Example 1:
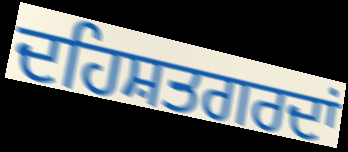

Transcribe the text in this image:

ਦਹਿਸ਼ਤਗਰਦਾਂ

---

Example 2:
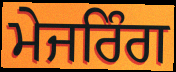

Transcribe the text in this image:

ਮੇਜਰਿੰਗ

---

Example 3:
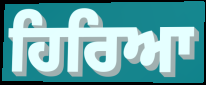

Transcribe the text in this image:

ਹਿਰਿਆ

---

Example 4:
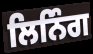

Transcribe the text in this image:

ਲਿਨਿੰਗ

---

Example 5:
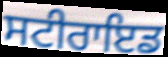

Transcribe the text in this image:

ਸਟੀਰਾਇਡ